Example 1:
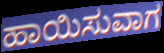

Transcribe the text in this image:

ಹಾಯಿಸುವಾಗ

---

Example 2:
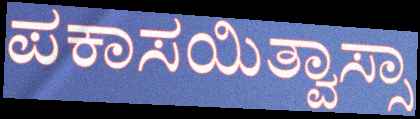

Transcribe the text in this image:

ಪಕಾಸಯಿತ್ವಾಸ್ಸಾ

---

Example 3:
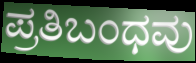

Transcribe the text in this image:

ಪ್ರತಿಬಂಧವು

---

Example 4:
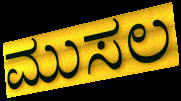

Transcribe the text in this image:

ಮುಸಲ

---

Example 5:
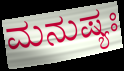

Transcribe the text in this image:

ಮನುಷ್ಯಃ